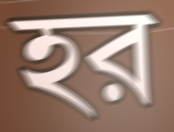
হর